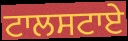
ਟਾਲਸਟਾਏ